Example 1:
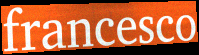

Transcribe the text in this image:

francesco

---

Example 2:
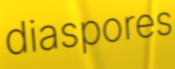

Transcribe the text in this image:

diaspores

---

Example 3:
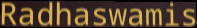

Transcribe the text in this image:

Radhaswamis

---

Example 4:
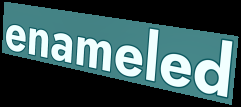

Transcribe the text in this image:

enameled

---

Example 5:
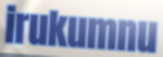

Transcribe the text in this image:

irukumnu